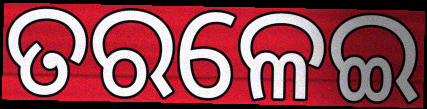
ତରଳେଇ